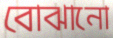
বোঝানো